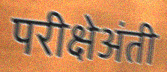
परीक्षेअंती